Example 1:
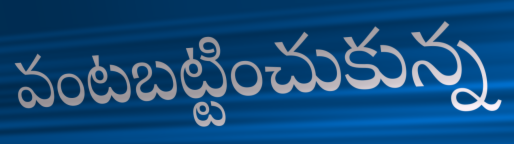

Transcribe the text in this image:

వంటబట్టించుకున్న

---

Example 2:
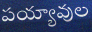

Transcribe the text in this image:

పయ్యావుల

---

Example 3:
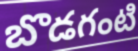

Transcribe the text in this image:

బొడగంటి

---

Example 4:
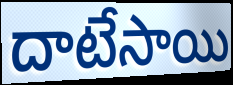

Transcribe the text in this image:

దాటేసాయి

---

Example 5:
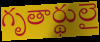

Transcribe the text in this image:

గృతార్థులై